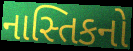
નાસ્તિકનો